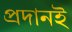
প্রদানই